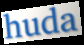
huda